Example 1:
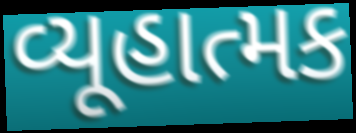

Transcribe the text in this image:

વ્યૂહાત્મક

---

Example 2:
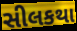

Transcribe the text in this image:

સીલકથા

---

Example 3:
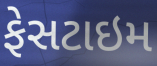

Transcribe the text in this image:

ફેસટાઇમ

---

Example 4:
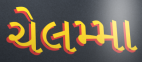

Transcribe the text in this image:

ચેલમ્મા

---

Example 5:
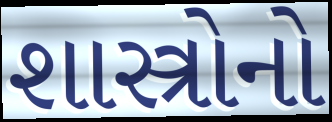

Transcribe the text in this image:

શાસ્ત્રોનો